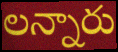
లన్నారు